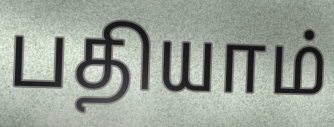
பதியாம்